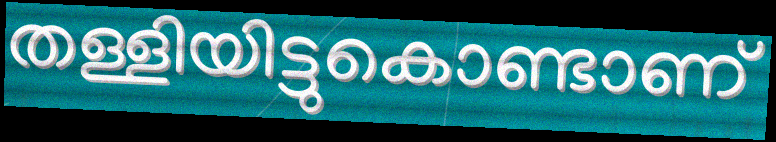
തള്ളിയിട്ടുകൊണ്ടാണ്